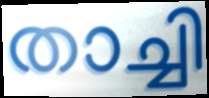
താച്ചി